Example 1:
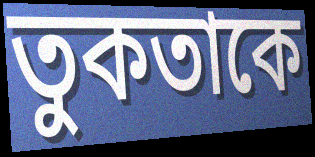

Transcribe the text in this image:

তুকতাকে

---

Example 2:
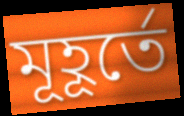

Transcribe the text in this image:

মূহূর্তে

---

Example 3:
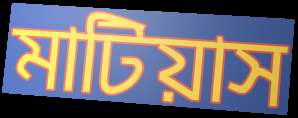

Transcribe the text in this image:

মাটিয়াস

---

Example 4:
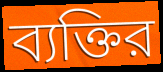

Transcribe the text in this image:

ব্যক্তির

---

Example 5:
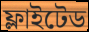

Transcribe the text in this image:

ফ্লাইটেড